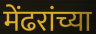
मेंढरांच्या